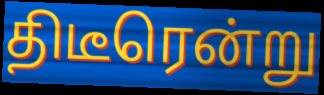
திடீரென்று